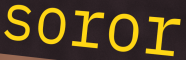
soror